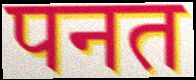
पनत